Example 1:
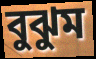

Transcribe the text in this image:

বুঝুম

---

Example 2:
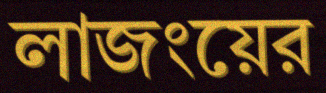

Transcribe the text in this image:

লাজংয়ের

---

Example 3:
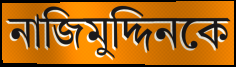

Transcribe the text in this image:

নাজিমুদ্দিনকে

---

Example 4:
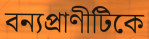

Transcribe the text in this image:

বন্যপ্রাণীটিকে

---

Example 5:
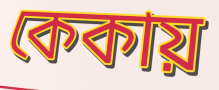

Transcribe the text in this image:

কেকায়